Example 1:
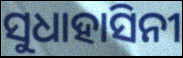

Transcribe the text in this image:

ସୁଧାହାସିନୀ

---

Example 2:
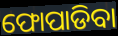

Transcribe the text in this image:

ଫୋପାଡିବା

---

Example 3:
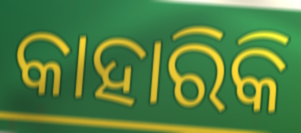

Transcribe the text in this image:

କାହାରିକି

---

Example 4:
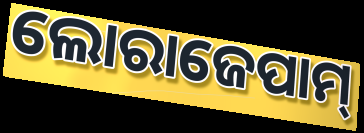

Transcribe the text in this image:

ଲୋରାଜେପାମ୍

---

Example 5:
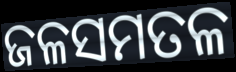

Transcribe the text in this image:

ଜଳସମତଳ